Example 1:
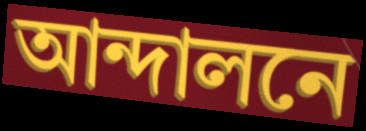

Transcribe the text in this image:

আন্দালনে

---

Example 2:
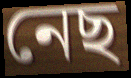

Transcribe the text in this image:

নেছ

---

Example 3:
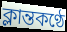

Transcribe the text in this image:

ক্লান্তকণ্ঠে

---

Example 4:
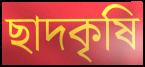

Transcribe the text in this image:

ছাদকৃষি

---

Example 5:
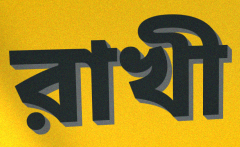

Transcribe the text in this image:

রাখী